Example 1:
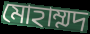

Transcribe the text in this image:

মোহাম্মদ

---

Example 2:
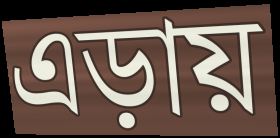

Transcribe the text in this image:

এড়ায়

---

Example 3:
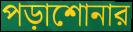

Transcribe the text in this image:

পড়াশোনার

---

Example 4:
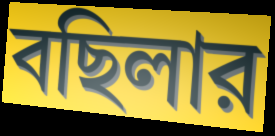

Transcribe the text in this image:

বছিলার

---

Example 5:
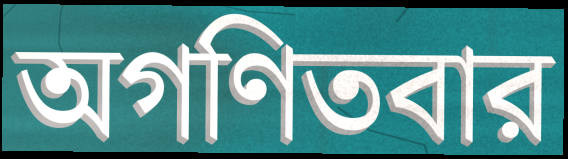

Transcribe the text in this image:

অগণিতবার